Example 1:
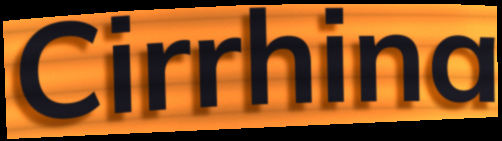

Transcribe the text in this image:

Cirrhina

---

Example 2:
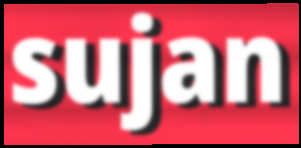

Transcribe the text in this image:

sujan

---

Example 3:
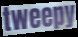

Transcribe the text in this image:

tweepy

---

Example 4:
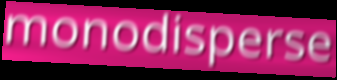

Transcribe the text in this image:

monodisperse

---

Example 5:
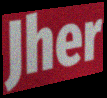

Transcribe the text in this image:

Jher